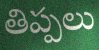
తిప్పలు